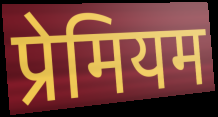
प्रेमियम